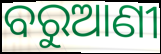
ବରୁଆଣୀ